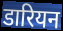
डारियन